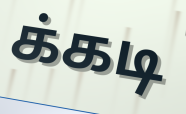
க்கடி